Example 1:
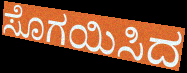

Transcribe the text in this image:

ಸೊಗಯಿಸಿದ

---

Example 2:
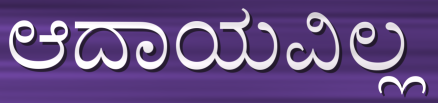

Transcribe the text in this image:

ಆದಾಯವಿಲ್ಲ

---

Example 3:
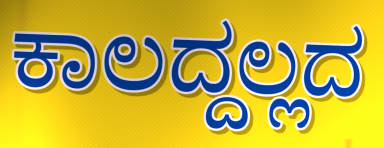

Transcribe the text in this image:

ಕಾಲದ್ದಲ್ಲದ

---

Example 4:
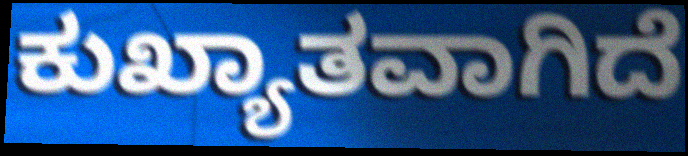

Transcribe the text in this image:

ಕುಖ್ಯಾತವಾಗಿದೆ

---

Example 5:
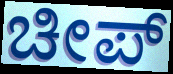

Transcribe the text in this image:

ಚೀಪ್